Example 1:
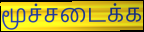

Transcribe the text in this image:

மூச்சடைக்க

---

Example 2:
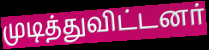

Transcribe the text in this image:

முடித்துவிட்டனர்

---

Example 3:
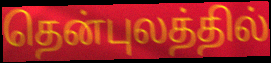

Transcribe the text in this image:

தென்புலத்தில்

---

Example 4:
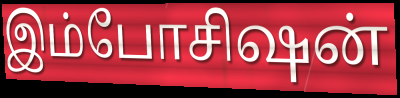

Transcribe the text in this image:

இம்போசிஷன்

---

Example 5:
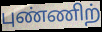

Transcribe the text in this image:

புண்ணிற்